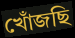
খোঁজছি